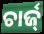
ଚାର୍ଜ୍